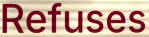
Refuses